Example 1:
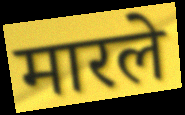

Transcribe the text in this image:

मारले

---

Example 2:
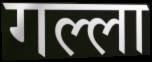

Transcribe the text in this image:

गल्ला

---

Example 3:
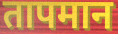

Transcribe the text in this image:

तापमान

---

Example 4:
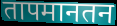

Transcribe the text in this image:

तापमानतन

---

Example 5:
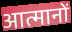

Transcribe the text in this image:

आत्मानों